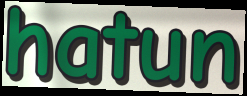
hatun